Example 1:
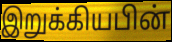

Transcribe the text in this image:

இறுக்கியபின்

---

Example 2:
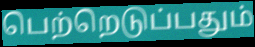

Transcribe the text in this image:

பெற்றெடுப்பதும்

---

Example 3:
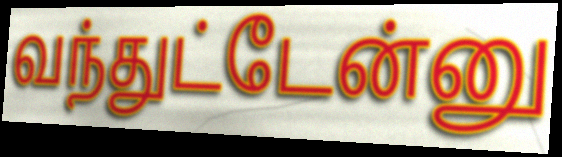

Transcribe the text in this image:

வந்துட்டேன்னு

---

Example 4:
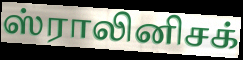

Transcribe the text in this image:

ஸ்ராலினிசக்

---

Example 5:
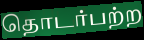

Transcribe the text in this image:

தொடர்பற்ற